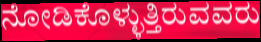
ನೋಡಿಕೊಳ್ಳುತ್ತಿರುವವರು